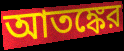
আতঙ্কের